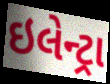
ઇલેન્ટ્રા